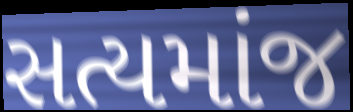
સત્યમાંજ